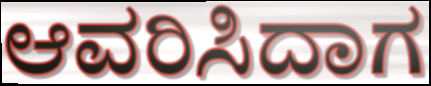
ಆವರಿಸಿದಾಗ